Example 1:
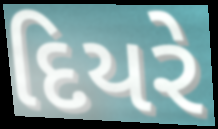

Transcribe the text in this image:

દિયરે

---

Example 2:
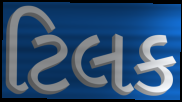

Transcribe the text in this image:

ટિલક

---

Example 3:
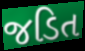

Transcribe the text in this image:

જડિત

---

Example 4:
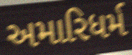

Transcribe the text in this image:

અમારિધર્મ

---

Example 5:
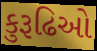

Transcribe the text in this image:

કુરૂઢિઓ